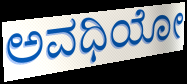
ಅವಧಿಯೋ